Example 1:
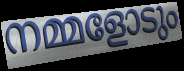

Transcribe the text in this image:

നമ്മളോടും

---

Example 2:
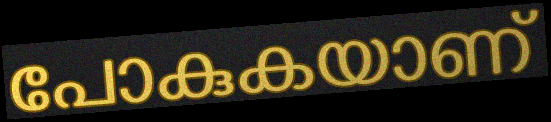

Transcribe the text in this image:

പോകുകയാണ്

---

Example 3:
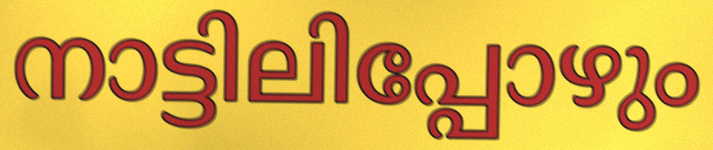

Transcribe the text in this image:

നാട്ടിലിപ്പോഴും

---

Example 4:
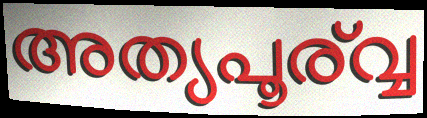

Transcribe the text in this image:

അത്യപൂര്വ്വ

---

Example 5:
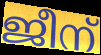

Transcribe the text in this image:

ജീന്